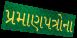
પ્રમાણપત્રોના